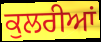
ਕੁਲਰੀਆਂ